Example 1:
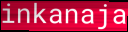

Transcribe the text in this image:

inkanaja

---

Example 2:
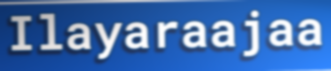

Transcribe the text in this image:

Ilayaraajaa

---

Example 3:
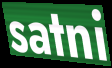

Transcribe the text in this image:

satni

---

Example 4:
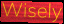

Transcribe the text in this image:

Wisely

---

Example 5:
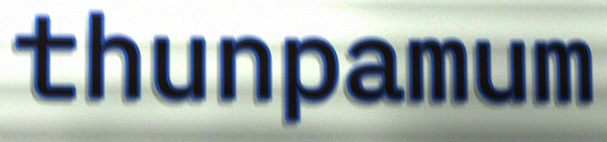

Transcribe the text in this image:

thunpamum